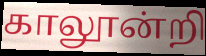
காலூன்றி